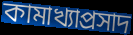
কামাখ্যাপ্রসাদ